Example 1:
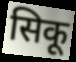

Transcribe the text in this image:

सिकू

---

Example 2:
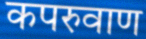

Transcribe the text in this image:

कपरुवाण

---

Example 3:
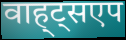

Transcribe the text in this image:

वाह्ट्सएप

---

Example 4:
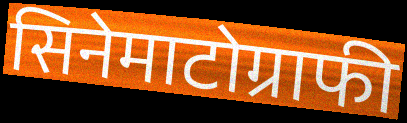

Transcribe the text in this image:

सिनेमाटोग्राफी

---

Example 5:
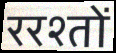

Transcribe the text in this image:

ररश्तों